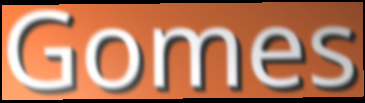
Gomes